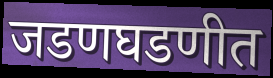
जडणघडणीत